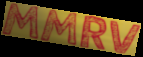
MMRV